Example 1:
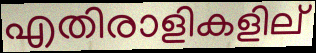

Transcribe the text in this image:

എതിരാളികളില്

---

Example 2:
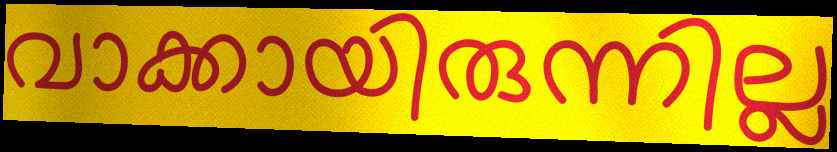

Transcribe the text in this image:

വാക്കായിരുന്നില്ല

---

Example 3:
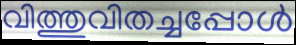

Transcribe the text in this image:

വിത്തുവിതച്ചപ്പോൾ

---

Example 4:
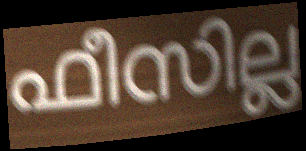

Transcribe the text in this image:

ഫീസില്ല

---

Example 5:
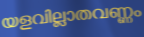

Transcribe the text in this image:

യളവില്ലാതവണ്ണം